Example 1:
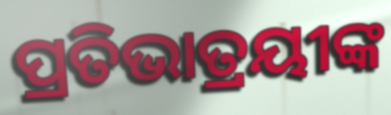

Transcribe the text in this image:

ପ୍ରତିଭାତ୍ରୟୀଙ୍କ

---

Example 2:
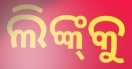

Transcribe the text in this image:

ଲିଙ୍କ୍‌କୁ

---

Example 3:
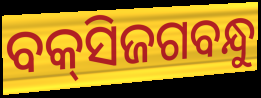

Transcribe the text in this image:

ବକ୍‌ସିଜଗବନ୍ଧୁ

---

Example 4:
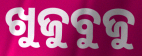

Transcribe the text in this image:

ଖୁଜୁବୁଜୁ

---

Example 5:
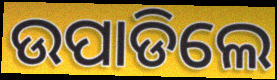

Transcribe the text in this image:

ଉପାଡିଲେ